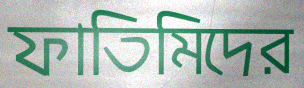
ফাতিমিদের